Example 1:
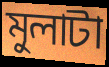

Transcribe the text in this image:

মুলাটা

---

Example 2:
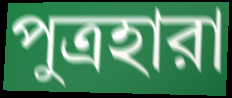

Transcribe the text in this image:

পুত্রহারা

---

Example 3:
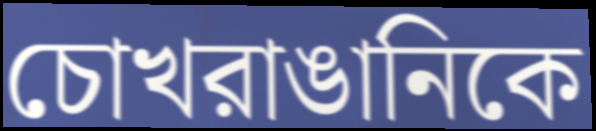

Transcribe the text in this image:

চোখরাঙানিকে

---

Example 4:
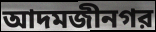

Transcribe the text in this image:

আদমজীনগর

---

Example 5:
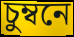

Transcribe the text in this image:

চুম্বনে